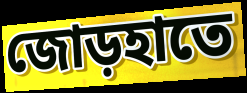
জোড়হাতে